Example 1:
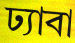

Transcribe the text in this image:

ঢ্যাবা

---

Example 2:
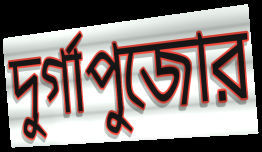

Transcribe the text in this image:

দুর্গাপুজোর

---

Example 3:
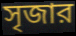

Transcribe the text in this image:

সৃজার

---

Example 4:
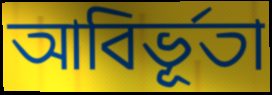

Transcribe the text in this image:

আবির্ভূতা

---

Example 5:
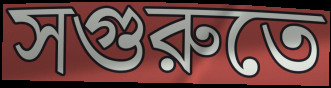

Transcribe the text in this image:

সগুরুতে